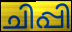
ചിപ്പി